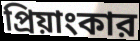
প্রিয়াংকার